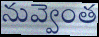
నువ్వెంత